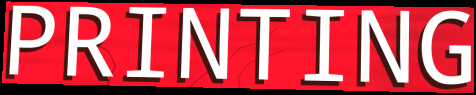
PRINTING